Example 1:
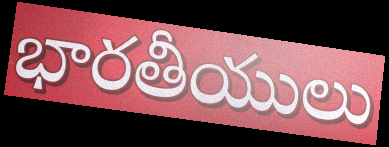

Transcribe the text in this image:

భారతీయులు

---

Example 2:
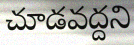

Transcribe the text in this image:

చూడవద్దని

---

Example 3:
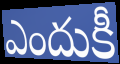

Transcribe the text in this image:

ఎందుకీ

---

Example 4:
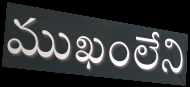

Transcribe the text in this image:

ముఖంలేని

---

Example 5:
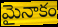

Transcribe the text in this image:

మైనాకం